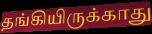
தங்கியிருக்காது